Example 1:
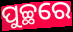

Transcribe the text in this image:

ପୁଚ୍ଛରେ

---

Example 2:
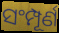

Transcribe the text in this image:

ସଂମ୍ପୂର୍ଣ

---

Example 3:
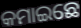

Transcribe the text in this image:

କମାଇଛେ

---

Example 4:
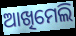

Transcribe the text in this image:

ଆଖିମେଲି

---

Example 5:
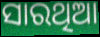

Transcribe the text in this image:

ସାରଥିଆ